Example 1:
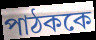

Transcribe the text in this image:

পাঠককে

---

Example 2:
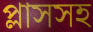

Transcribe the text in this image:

প্লাসসহ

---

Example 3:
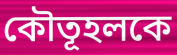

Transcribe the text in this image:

কৌতূহলকে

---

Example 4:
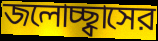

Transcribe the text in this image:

জলোচ্ছ্বাসের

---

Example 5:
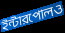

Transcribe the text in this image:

ইন্টারপোলও